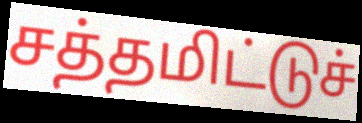
சத்தமிட்டுச்